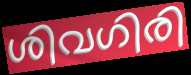
ശിവഗിരി